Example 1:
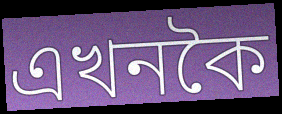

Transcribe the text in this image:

এখনকৈ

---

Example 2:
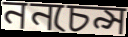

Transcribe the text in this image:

ননচেন্স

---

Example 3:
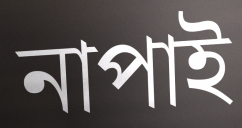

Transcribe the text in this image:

নাপাই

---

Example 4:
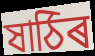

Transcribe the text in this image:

ষাঠিৰ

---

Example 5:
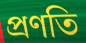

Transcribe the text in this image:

প্ৰণতি